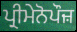
ਪ੍ਰੀਮੇਨੋਪੌਜ਼